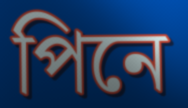
পিনে